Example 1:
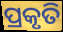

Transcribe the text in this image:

ପ୍ରକୃତି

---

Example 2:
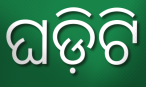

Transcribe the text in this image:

ଘଡ଼ିଟି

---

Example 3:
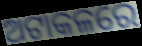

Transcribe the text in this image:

ଅଟାକଳରେ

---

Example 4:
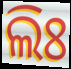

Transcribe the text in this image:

ଲିଃ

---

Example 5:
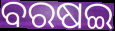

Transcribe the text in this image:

ବରଷଇ